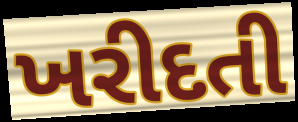
ખરીદતી